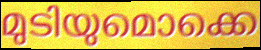
മുടിയുമൊക്കെ